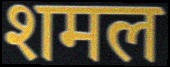
शमल